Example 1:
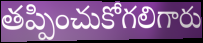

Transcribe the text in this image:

తప్పించుకోగలిగారు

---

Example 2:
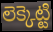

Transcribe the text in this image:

లెక్కెట్టి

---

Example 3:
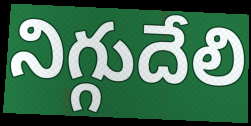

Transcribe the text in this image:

నిగ్గుదేలి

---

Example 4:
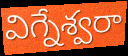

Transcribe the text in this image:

విగ్నేశ్వరా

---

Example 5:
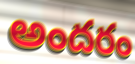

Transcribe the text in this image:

అందరం